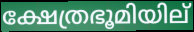
ക്ഷേത്രഭൂമിയില്